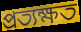
প্রত্যক্ষত